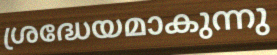
ശ്രദ്ധേയമാകുന്നു